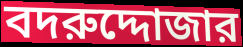
বদরুদ্দোজার